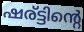
ഷര്ട്ടിന്റെ